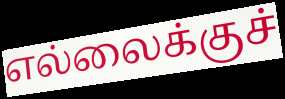
எல்லைக்குச்